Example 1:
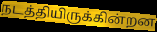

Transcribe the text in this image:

நடத்தியிருக்கின்றன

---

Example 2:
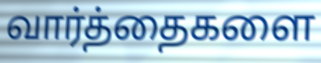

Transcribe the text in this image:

வார்த்தைகளை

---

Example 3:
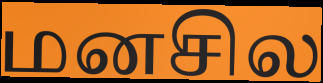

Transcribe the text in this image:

மனசில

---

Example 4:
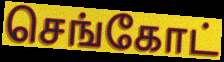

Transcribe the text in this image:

செங்கோட்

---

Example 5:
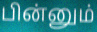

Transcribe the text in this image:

பின்னும்